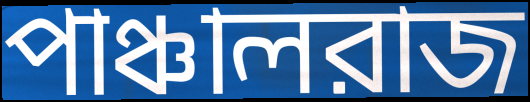
পাঞ্চালরাজ